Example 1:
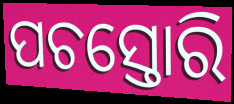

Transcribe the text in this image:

ପଚସ୍ତୋରି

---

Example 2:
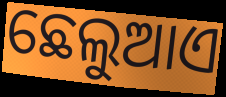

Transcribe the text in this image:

ଛେଲୁଆଏ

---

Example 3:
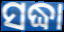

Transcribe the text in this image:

ସଦ୍ଧା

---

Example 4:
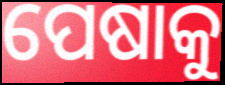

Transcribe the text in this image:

ପେଷାକୁ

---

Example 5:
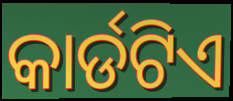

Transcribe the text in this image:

କାର୍ଡଟିଏ